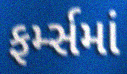
ફર્મ્સમાં